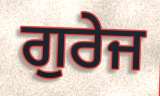
ਗੁਰੇਜ